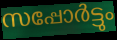
സപ്പോർട്ടും